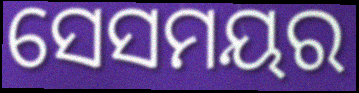
ସେସମୟର